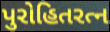
પુરોહિતરત્ન